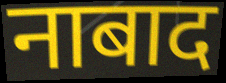
नाबाद